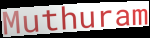
Muthuram